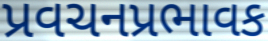
પ્રવચનપ્રભાવક